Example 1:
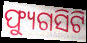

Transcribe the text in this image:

ଫ୍ୟୁଗସିଟି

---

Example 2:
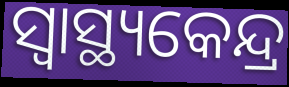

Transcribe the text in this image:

ସ୍ବାସ୍ଥ୍ୟକେନ୍ଦ୍ର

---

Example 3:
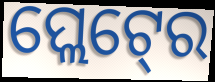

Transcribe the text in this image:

ପ୍ଲେଟ୍‍ରେ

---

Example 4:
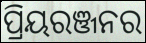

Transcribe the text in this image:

ପ୍ରିୟରଞ୍ଜନର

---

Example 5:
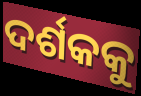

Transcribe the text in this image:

ଦର୍ଶକକୁ